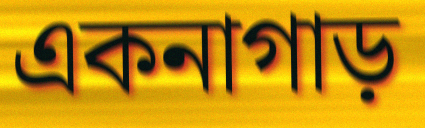
একনাগাড়